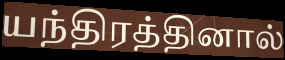
யந்திரத்தினால்